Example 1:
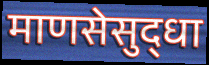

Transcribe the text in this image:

माणसेसुद्धा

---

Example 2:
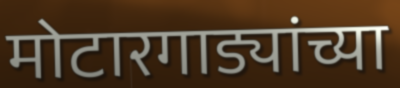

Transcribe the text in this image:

मोटारगाड्यांच्या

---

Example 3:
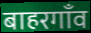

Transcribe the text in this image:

बाहरगाँव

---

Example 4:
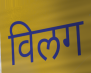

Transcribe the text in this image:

विलग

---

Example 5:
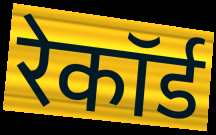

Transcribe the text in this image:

रेकॉर्ड